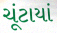
ચૂંટાયાં